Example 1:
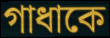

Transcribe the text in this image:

গাধাকে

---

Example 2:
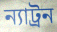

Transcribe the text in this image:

ন্যাট্রন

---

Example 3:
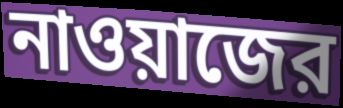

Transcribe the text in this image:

নাওয়াজের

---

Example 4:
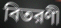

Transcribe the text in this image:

বিতরণী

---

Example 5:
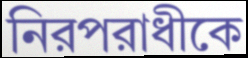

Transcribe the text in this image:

নিরপরাধীকে